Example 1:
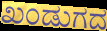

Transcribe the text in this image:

ಖಂಡುಗದ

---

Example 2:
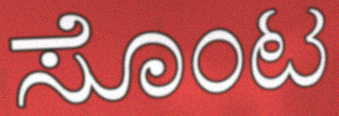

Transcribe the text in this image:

ಸೊಂಟ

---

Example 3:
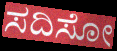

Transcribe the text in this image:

ಸದಿಸೋ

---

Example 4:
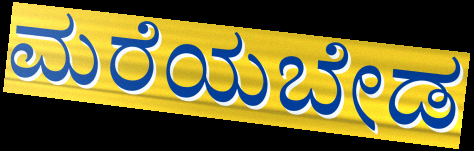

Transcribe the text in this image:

ಮರೆಯಬೇಡ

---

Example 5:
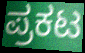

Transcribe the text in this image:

ಪ್ರಕಟ